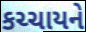
કચ્ચાયને